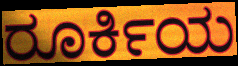
ರೂರ್ಕಿಯ